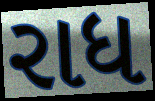
રાધ